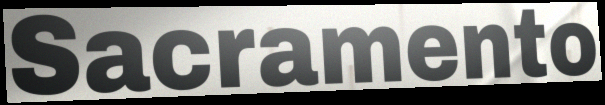
Sacramento